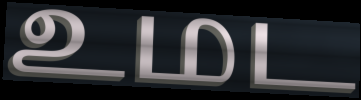
உமட